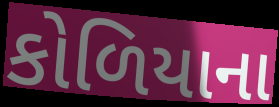
કોળિયાના